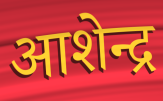
आशेन्द्र